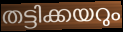
തട്ടിക്കയറും